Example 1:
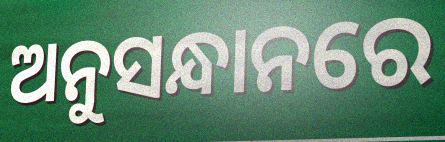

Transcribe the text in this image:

ଅନୁସନ୍ଧାନରେ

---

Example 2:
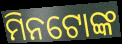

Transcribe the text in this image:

ମିନଟୋଙ୍କ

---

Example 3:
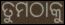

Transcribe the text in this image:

ତୁମଠାକୁ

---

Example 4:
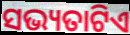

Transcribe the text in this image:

ସଭ୍ୟତାଟିଏ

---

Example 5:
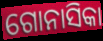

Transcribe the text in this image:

ଗୋନାସିକା